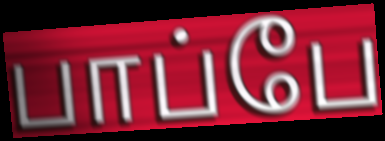
பாப்பே